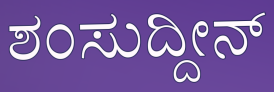
ಶಂಸುದ್ದೀನ್